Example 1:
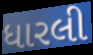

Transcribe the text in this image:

ધારલી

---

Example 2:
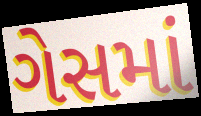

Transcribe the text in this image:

ગેસમાં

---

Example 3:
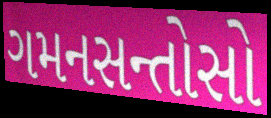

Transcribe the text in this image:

ગમનસન્તોસો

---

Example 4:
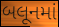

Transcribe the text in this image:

બલૂનમાં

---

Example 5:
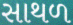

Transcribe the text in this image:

સાથળ